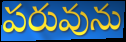
పరువును